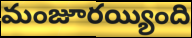
మంజూరయ్యింది